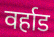
वर्हाड